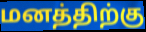
மனத்திற்கு